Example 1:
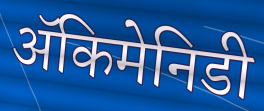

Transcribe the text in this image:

ॲकिमेनिडी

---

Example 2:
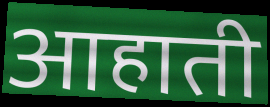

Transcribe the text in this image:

आहाती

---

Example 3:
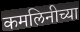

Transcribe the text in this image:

कमलिनीच्या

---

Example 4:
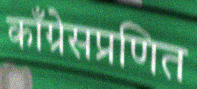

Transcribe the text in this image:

काँग्रेसप्रणित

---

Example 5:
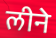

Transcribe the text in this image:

लीने